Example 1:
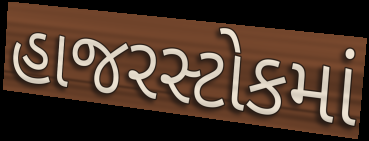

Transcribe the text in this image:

હાજરસ્ટોકમાં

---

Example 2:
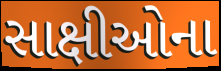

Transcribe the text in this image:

સાક્ષીઓના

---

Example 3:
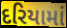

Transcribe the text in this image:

દરિયામાં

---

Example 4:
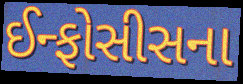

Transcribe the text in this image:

ઈન્ફોસીસના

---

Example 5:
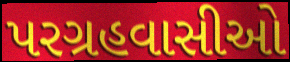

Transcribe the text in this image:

પરગ્રહવાસીઓ